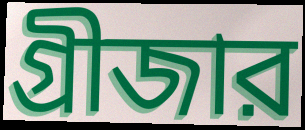
গ্রীজার